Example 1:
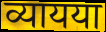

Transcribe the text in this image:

व्यायया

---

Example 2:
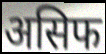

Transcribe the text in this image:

असिफ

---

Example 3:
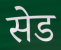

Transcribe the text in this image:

सेड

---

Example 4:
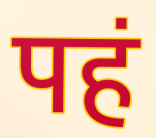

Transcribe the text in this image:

पहं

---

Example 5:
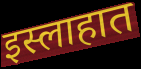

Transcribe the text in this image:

इस्लाहात